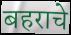
बहराचे